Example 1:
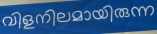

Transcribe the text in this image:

വിളനിലമായിരുന്ന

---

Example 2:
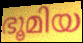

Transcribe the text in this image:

ഭൂമിയ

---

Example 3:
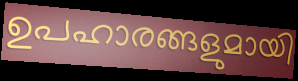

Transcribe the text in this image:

ഉപഹാരങ്ങളുമായി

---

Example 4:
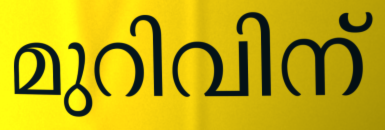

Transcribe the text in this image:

മുറിവിന്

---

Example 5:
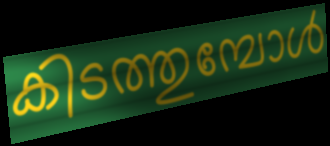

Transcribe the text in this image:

കിടത്തുമ്പോൾ